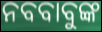
ନବବାବୁଙ୍କ